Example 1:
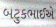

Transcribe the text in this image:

બટુકભાઈએ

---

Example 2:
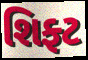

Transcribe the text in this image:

શિફ્ટ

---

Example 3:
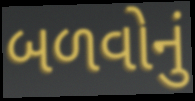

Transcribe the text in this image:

બળવોનું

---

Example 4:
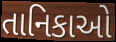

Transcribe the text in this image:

તાનિકાઓ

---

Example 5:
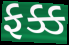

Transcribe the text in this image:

ફક્ક